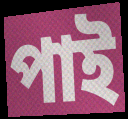
পাই